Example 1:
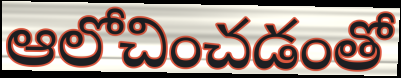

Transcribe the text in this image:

ఆలోచించడంతో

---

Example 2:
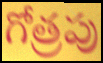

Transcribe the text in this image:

గోత్రపు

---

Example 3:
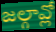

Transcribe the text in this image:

జల్గావ్లో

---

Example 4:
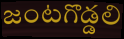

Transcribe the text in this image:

జంటగొడ్డలి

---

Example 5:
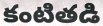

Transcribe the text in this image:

కంటితడి